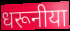
धरूनीया